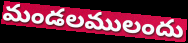
మండలములందు